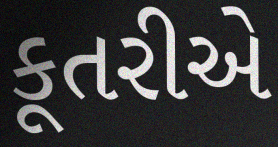
કૂતરીએ